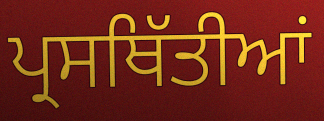
ਪ੍ਰਸਥਿੱਤੀਆਂ